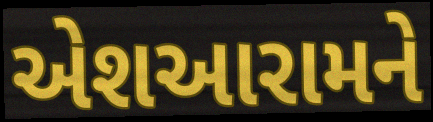
એશઆરામને